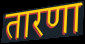
तारणा